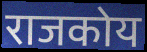
राजकोय